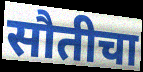
सौतीचा